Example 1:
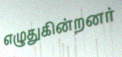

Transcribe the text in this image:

எழுதுகின்றனர்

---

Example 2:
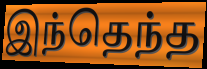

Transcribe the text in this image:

இந்தெந்த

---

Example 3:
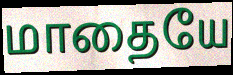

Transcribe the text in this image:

மாதையே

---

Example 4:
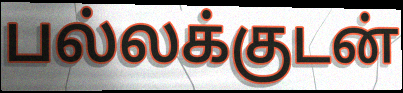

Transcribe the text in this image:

பல்லக்குடன்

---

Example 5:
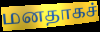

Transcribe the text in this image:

மனதாகச்